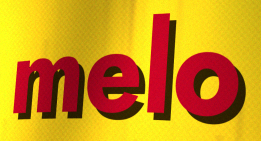
melo